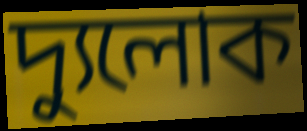
দ্যুলোক